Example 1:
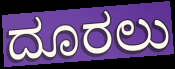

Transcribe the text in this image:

ದೂರಲು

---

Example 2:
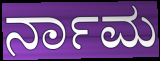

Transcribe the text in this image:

ರ್ನಾಮ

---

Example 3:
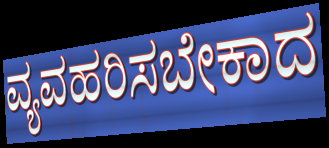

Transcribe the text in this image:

ವ್ಯವಹರಿಸಬೇಕಾದ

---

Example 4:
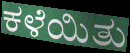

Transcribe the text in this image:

ಕಳೆಯಿತು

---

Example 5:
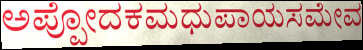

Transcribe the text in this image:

ಅಪ್ಪೋದಕಮಧುಪಾಯಸಮೇವ